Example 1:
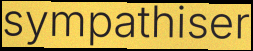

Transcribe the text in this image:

sympathiser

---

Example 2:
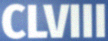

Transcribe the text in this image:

CLVIII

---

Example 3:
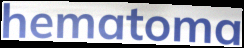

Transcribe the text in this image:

hematoma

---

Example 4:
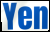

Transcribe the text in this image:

Yen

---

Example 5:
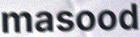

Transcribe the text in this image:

masood